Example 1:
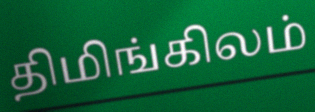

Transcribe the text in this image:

திமிங்கிலம்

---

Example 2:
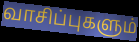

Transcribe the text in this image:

வாசிப்புகளும்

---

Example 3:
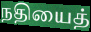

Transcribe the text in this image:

நதியைத்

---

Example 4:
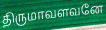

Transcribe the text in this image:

திருமாவளவனே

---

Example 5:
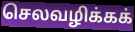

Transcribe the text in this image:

செலவழிக்கக்